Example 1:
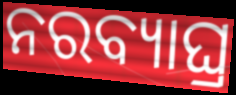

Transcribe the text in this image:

ନରବ୍ୟାଘ୍ର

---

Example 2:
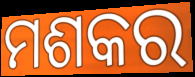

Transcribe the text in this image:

ମଶକର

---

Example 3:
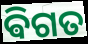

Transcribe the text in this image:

ଵିଗତ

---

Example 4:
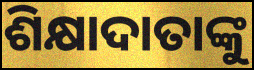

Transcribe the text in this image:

ଶିକ୍ଷାଦାତାଙ୍କୁ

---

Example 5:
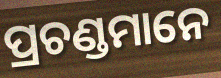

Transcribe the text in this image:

ପ୍ରଚଣ୍ଡମାନେ